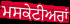
ਮਸਕੇਟੀਅਰਾਂ